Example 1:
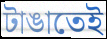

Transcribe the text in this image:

টাঙাতেই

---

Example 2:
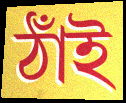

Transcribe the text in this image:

ঠাঁই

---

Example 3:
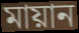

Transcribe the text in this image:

মায়ান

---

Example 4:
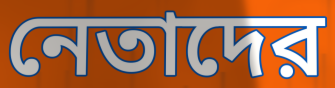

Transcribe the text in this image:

নেতাদের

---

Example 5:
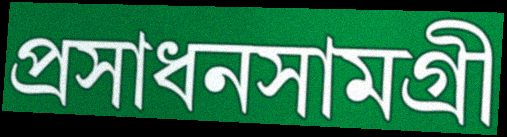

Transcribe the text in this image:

প্রসাধনসামগ্রী